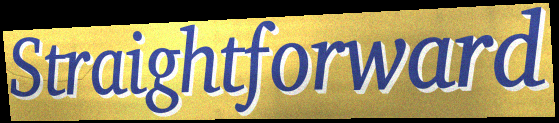
Straightforward